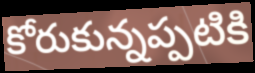
కోరుకున్నప్పటికి